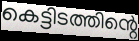
കെട്ടിടത്തിന്റെ